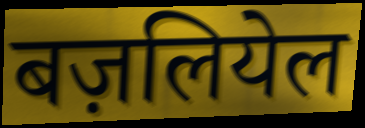
बज़लियेल